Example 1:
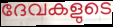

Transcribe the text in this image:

ദേവകളുടെ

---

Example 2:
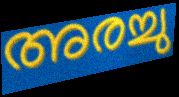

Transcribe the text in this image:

അരച്ചു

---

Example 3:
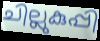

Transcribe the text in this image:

ചില്ലുകുപ്പി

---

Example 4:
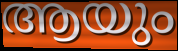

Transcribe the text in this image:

ആയും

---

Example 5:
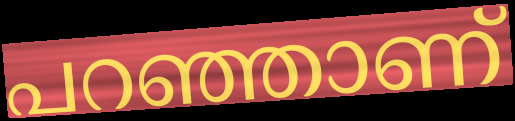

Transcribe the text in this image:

പറഞ്ഞാണ്